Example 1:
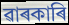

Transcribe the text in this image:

ৱাৰকাৰি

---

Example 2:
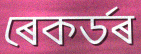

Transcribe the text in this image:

ৰেকৰ্ডৰ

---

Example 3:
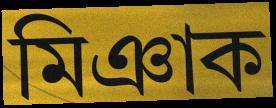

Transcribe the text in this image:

মিঞাক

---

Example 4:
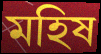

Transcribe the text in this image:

মহিষ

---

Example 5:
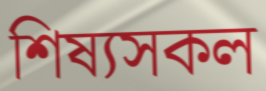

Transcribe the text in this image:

শিষ্যসকল